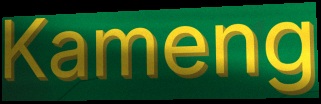
Kameng